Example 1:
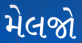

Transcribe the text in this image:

મેલજો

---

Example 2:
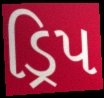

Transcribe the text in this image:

ડ્રિપ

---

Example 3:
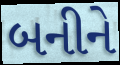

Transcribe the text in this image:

બનીને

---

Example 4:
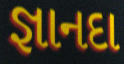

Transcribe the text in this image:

જ્ઞાનદા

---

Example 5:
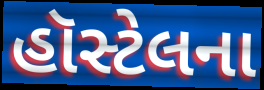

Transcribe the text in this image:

હૉસ્ટેલના